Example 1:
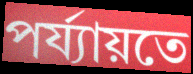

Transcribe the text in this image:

পৰ্য্যায়তে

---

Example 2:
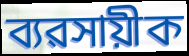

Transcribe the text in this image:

ব্যৱসায়ীক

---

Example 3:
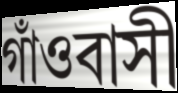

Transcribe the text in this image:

গাঁওবাসী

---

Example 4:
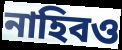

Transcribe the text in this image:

নাহিবও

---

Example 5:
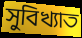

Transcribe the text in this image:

সুবিখ্যাত